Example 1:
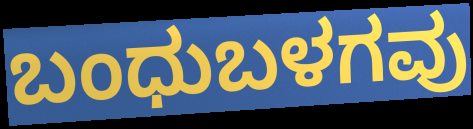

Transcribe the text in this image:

ಬಂಧುಬಳಗವು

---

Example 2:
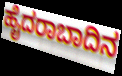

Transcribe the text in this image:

ಹೈದರಾಬಾದಿನ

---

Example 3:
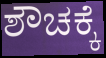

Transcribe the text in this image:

ಶೌಚಕ್ಕೆ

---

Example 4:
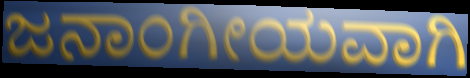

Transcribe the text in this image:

ಜನಾಂಗೀಯವಾಗಿ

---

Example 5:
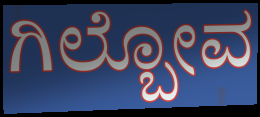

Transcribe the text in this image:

ಗಿಲ್ಬೋವ